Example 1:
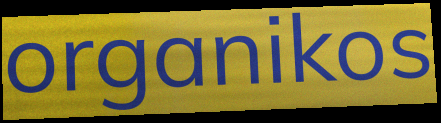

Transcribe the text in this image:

organikos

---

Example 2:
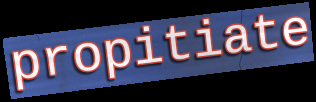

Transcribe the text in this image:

propitiate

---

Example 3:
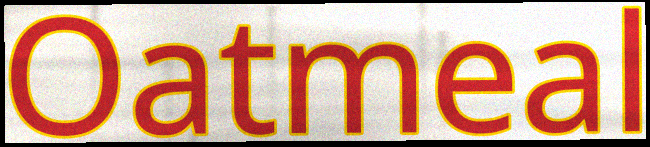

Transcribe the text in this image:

Oatmeal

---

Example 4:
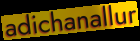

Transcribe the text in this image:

adichanallur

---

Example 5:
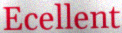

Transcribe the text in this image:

Ecellent